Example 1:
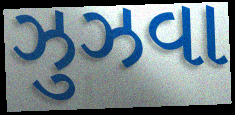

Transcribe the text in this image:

ઝુઝવા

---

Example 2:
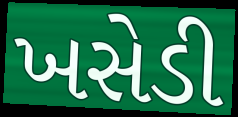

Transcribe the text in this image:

ખસેડી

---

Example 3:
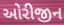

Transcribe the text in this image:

ઓરીજીન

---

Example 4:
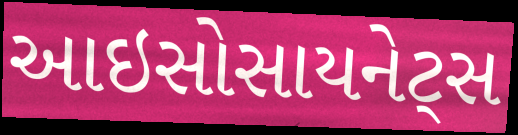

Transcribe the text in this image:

આઇસોસાયનેટ્સ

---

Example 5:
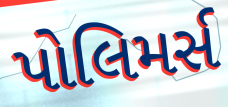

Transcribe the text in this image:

પોલિમર્સ